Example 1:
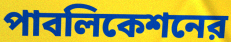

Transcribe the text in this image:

পাবলিকেশনের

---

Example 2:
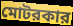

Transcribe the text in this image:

মোটরকার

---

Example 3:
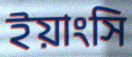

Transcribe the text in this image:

ইয়াংসি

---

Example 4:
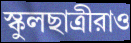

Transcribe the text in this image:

স্কুলছাত্রীরাও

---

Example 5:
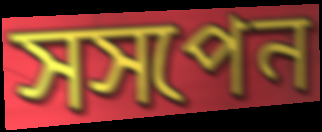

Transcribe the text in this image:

সসপেন